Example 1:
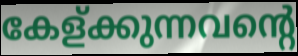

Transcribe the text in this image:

കേള്ക്കുന്നവന്റെ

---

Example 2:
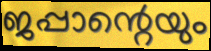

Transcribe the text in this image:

ജപ്പാന്റെയും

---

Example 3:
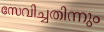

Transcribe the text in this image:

സേവിച്ചതിന്നും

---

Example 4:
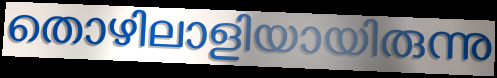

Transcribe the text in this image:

തൊഴിലാളിയായിരുന്നു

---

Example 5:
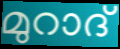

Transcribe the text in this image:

മുറാദ്